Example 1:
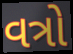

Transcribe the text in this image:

વત્રો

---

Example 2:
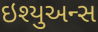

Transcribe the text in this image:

ઇશ્યુઅન્સ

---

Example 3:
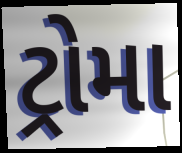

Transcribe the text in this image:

ટ્રોમા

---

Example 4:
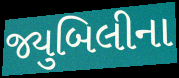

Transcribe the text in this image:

જ્યુબિલીના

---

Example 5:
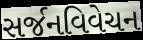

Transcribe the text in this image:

સર્જનવિવેચન